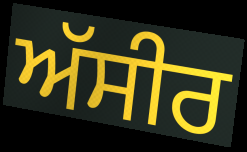
ਅੱਸੀਰ